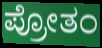
ಪ್ರೋತಂ